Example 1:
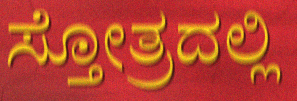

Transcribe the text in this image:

ಸ್ತೋತ್ರದಲ್ಲಿ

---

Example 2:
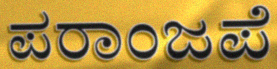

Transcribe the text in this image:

ಪರಾಂಜಪೆ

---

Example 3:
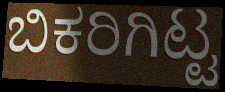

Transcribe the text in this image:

ಬಿಕರಿಗಿಟ್ಟ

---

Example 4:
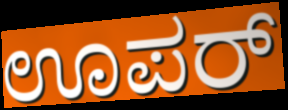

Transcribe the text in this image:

ಊಪರ್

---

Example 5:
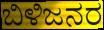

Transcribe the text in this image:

ಬಿಳಿಜನರ